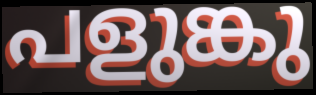
പളുങ്കു